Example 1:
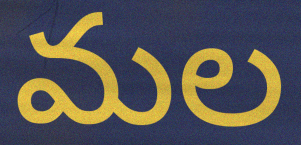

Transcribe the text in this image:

మల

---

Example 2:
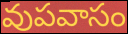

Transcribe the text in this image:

వుపవాసం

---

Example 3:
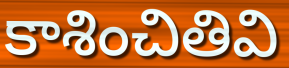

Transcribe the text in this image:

కాశించితివి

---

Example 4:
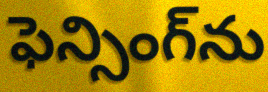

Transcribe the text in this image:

ఫెన్సింగ్‌ను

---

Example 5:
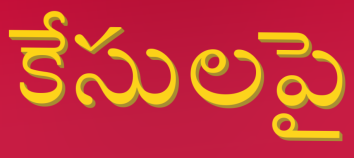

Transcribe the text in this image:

కేసులపై